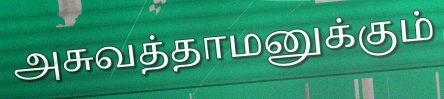
அசுவத்தாமனுக்கும்